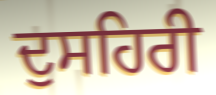
ਦੁਸਹਿਰੀ